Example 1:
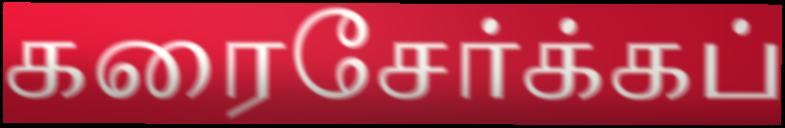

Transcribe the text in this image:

கரைசேர்க்கப்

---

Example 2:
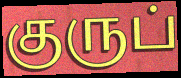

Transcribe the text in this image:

குருப்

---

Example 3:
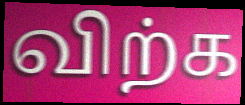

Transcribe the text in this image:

விற்க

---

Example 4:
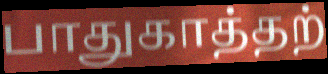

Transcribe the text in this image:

பாதுகாத்தற்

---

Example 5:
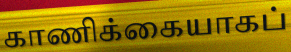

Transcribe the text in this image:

காணிக்கையாகப்